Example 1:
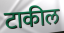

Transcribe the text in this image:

टाकील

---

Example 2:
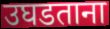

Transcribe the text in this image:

उघडताना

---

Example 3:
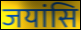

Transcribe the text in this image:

जयांसि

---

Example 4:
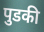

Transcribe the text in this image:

पुडकी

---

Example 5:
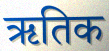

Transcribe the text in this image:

ऋतिक